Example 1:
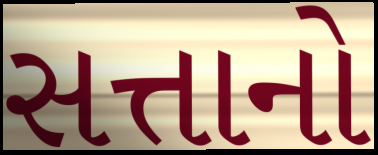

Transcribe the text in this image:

સત્તાનો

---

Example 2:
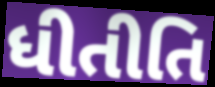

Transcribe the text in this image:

ધીતીતિ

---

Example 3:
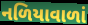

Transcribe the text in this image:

નળિયાવાળાં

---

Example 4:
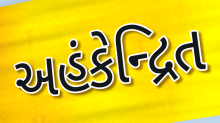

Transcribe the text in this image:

અહંકેન્દ્રિત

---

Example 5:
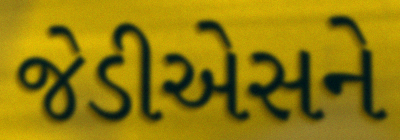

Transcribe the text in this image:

જેડીએસને